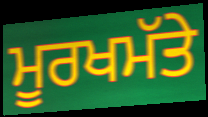
ਮੂਰਖਮੱਤੇ